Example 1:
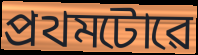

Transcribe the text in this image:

প্ৰথমটোৱে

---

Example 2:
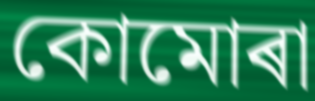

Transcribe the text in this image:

কোমোৰা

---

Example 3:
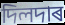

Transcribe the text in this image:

দিলদাৰ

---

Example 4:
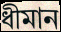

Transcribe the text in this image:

ধীমান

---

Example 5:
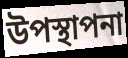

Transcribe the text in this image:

উপস্থাপনা